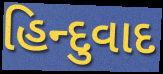
હિન્દુવાદ